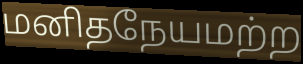
மனிதநேயமற்ற